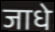
जाधे